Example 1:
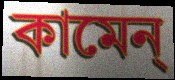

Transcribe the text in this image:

কামেন্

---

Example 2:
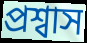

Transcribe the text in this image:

প্রশ্বাস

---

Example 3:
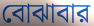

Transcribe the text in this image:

বোঝাবার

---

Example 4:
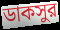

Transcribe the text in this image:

ডাকসুর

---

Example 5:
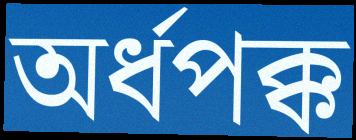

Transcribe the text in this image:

অর্ধপক্ক